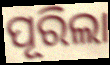
ପୂରିଲା